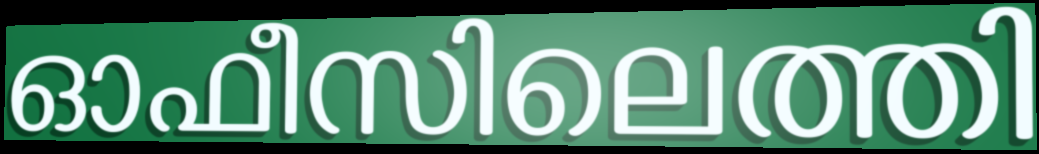
ഓഫീസിലെത്തി